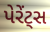
પેરેંટ્સ